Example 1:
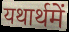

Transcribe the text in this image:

यथार्थमें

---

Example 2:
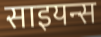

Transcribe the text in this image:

साइयन्स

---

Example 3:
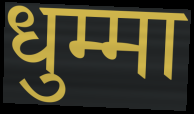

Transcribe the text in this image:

धुम्मा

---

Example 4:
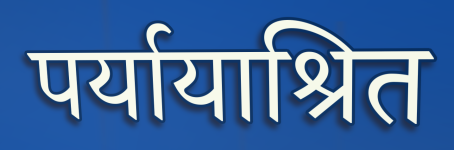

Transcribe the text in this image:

पर्यायाश्रित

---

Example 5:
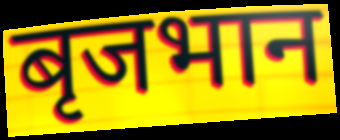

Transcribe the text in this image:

बृजभान